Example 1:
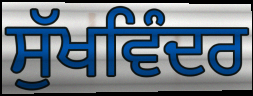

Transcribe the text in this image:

ਸੁੱਖਵਿੰਦਰ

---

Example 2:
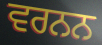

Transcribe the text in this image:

ਵਰਨਨ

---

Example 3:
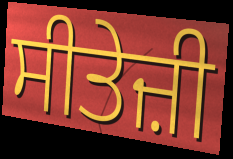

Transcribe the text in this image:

ਸੀਤੇਜ਼ੀ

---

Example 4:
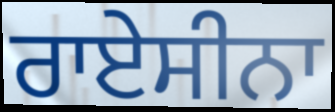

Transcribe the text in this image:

ਰਾਏਸੀਨਾ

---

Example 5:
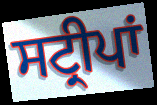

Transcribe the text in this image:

ਸਟ੍ਰੀਪਾਂ